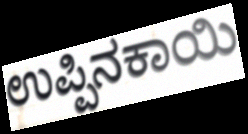
ಉಪ್ಪಿನಕಾಯಿ